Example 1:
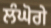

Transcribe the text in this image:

ਲੰਘੋਗੇ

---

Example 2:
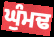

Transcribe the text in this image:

ਘੁੰਮਢ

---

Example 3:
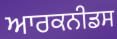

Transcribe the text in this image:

ਆਰਕਨੀਡਸ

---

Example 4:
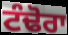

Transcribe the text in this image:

ਟੰਢੋਰਾ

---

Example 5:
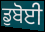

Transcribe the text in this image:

ਡੁਬੋਈ